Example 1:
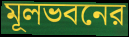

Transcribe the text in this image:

মূলভবনের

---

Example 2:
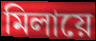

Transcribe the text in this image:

মিলায়ে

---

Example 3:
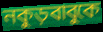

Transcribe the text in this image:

নকুড়বাবুকে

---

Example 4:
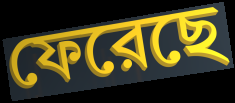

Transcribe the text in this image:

ফেরেছে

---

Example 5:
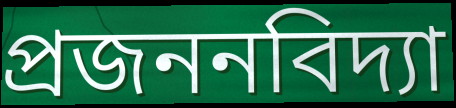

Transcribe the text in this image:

প্রজননবিদ্যা